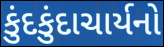
કુંદકુંદાચાર્યનો